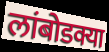
लांबोडक्या